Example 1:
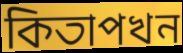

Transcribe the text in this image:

কিতাপখন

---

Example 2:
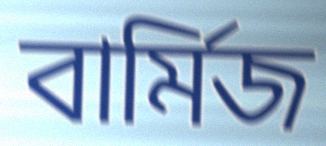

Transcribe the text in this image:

বাৰ্মিজ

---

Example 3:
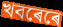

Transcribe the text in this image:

খবৰেৰে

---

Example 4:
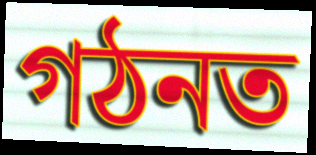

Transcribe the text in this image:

গঠনত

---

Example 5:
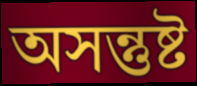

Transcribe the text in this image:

অসন্তুষ্ট